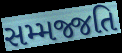
સમ્મજ્જતિ